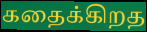
கதைக்கிறத